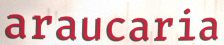
araucaria